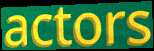
actors